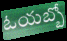
ఓయబ్బో